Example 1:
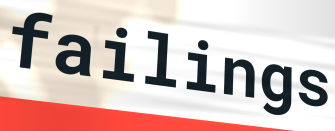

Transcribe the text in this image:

failings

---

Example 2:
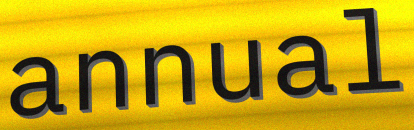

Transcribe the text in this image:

annual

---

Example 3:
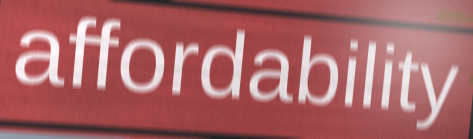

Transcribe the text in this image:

affordability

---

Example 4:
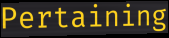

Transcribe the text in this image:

Pertaining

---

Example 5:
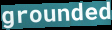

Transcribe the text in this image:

grounded